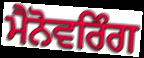
ਮੈਨੋਵਰਿੰਗ